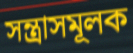
সন্ত্রাসমূলক